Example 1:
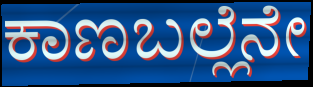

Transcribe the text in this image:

ಕಾಣಬಲ್ಲೆನೇ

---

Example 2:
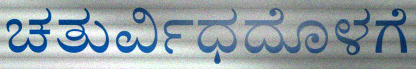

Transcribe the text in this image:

ಚತುರ್ವಿಧದೊಳಗೆ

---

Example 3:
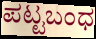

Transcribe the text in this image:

ಪಟ್ಟಬಂಧ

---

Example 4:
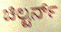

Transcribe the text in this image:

ಚಿಲ್ಟರ್ನ್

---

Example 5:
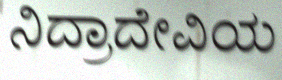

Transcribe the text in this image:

ನಿದ್ರಾದೇವಿಯ